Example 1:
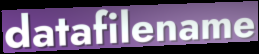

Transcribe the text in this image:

datafilename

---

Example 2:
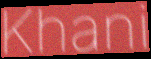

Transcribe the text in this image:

Khani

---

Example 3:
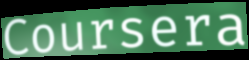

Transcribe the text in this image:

Coursera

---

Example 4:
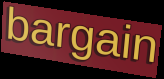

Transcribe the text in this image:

bargain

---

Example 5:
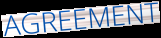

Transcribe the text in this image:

AGREEMENT